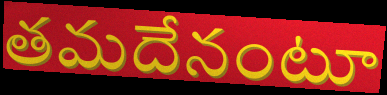
తమదేనంటూ